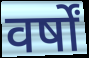
वर्षों